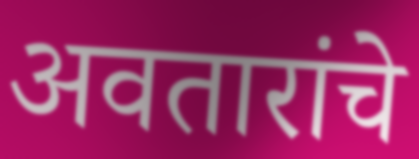
अवतारांचे